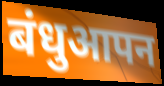
बंधुआपन